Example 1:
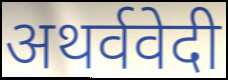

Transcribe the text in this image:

अथर्ववेदी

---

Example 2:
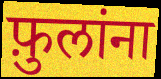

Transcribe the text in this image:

फ़ुलांना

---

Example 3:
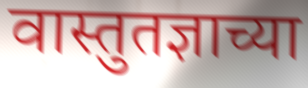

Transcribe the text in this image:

वास्तुतज्ञाच्या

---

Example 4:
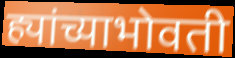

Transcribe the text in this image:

ह्यांच्याभोवती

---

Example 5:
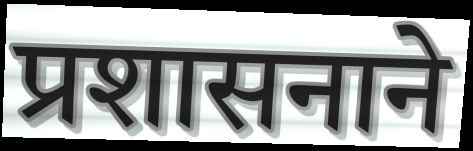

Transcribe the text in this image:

प्रशासनाने